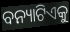
ବନ୍ୟାଟିଏକୁ